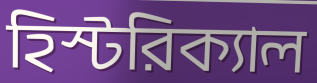
হিস্টরিক্যাল